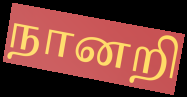
நானறி